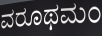
ವರೂಥಮಂ